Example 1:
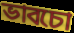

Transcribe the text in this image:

ভাবচো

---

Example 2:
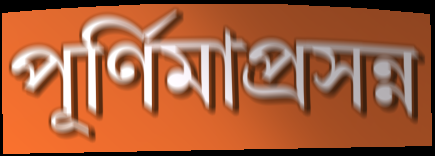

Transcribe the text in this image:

পূর্ণিমাপ্রসন্ন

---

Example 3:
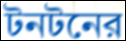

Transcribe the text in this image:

টনটনের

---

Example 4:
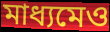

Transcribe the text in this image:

মাধ্যমেও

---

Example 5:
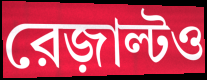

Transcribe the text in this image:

রেজ়াল্টও